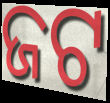
ଜଟ